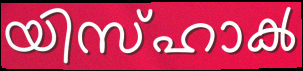
യിസ്ഹാൿ